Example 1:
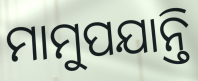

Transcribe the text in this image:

ମାମୁପଯାନ୍ତି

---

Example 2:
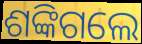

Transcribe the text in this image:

ଶଙ୍କିଗଲେ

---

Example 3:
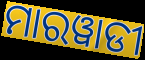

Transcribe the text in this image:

ମାରୱାଡୀ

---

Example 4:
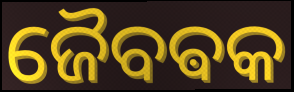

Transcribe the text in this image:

ଜୈବଵକ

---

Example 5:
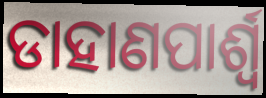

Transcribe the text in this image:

ଡାହାଣପାର୍ଶ୍ୱ